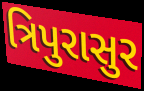
ત્રિપુરાસુર